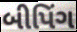
બીપિંગ